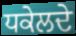
ਧਕੇਲਦੇ